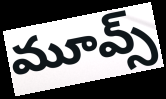
మూవ్స్